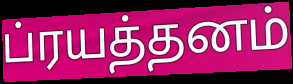
ப்ரயத்தனம்